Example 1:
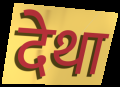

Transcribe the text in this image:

देथा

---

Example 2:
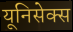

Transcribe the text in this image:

यूनिसेक्स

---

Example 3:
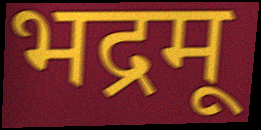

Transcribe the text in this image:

भद्रमू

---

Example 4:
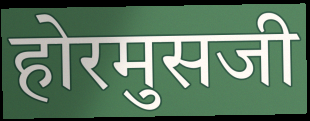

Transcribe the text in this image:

होरमुसजी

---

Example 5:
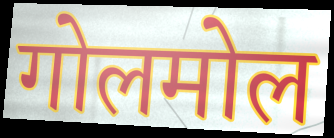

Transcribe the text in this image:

गोलमोल